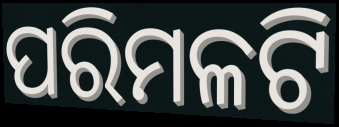
ପରିମଳଟି